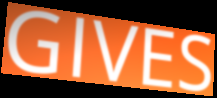
GIVES